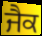
ਜੈਕ